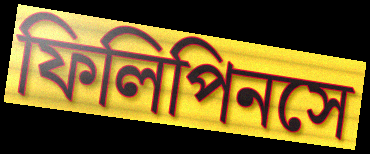
ফিলিপিনসে